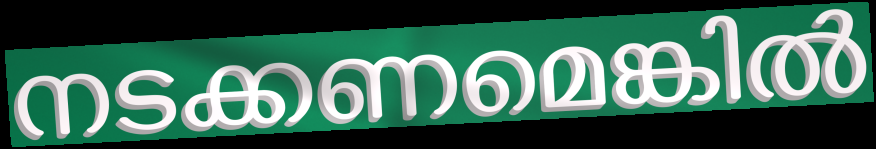
നടക്കണമെങ്കിൽ